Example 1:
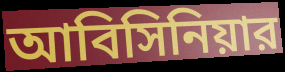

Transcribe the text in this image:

আবিসিনিয়ার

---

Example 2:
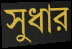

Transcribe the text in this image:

সুধার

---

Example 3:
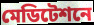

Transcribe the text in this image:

মেডিটেশনে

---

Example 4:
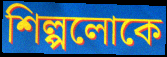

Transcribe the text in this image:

শিল্পলোকে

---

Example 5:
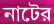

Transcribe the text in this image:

নাটের